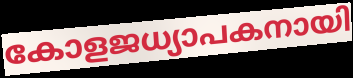
കോളജധ്യാപകനായി